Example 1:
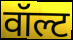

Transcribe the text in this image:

वॉल्ट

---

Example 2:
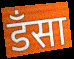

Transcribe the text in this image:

डँसा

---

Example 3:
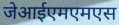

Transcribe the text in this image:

जेआईएमएमएस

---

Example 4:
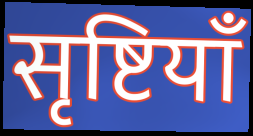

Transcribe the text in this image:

सृष्टियाँ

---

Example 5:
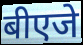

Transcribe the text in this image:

बीएजे